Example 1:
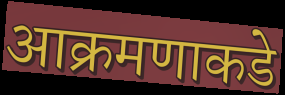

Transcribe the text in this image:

आक्रमणाकडे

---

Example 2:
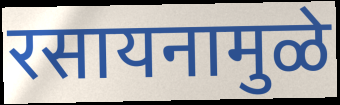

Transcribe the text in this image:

रसायनामुळे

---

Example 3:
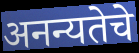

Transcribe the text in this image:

अनन्यतेचे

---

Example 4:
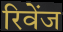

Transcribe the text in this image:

रिवेंज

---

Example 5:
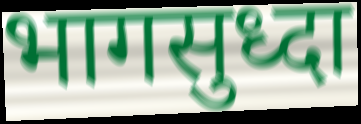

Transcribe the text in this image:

भागसुध्दा